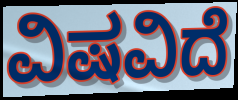
ವಿಷವಿದೆ